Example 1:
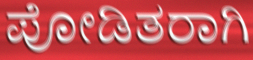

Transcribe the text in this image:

ಪೋಡಿತರಾಗಿ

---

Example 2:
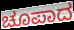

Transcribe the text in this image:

ಚೂಪಾದ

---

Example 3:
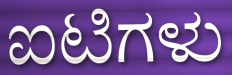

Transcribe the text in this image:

ಐಟಿಗಳು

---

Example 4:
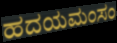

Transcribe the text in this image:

ಹದಯಮಂಸಂ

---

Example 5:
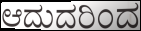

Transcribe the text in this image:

ಆದುದರಿಂದ